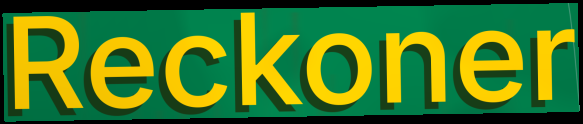
Reckoner